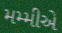
મમ્મીએ